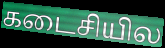
கடைசியில